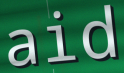
aid